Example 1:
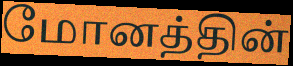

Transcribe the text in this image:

மோனத்தின்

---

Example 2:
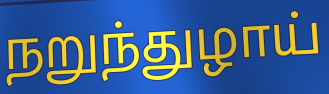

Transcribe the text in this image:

நறுந்துழாய்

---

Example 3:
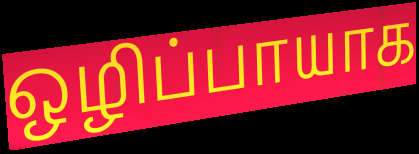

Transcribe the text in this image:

ஒழிப்பாயாக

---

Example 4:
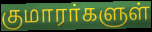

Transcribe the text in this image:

குமாரர்களுள்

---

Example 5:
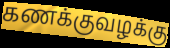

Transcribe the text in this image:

கணக்குவழக்கு